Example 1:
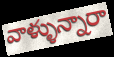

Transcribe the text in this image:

వాళ్ళున్నారా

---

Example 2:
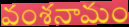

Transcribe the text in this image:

వంశనామం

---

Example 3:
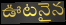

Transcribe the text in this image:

ఊటనైన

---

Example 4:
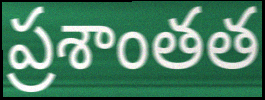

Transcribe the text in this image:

ప్రశాంతత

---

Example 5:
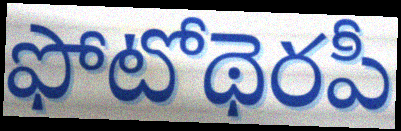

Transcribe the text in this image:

ఫోటోథెరపీ